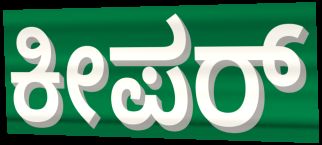
ಕೀಪರ್